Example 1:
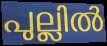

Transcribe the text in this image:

പുല്ലിൽ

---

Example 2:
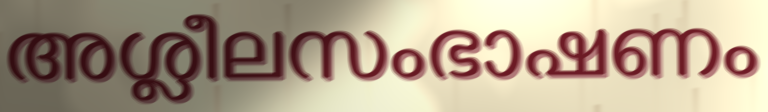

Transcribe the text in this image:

അശ്ലീലസംഭാഷണം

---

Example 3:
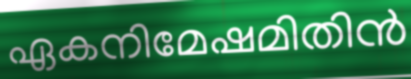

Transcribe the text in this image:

ഏകനിമേഷമിതിൻ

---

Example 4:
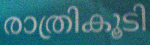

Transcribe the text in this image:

രാത്രികൂടി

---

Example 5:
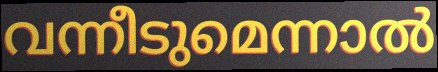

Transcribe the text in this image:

വന്നീടുമെന്നാൽ